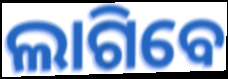
ଲାଗିବେ